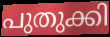
പുതുക്കി